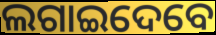
ଲଗାଇଦେବେ